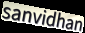
sanvidhan